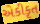
એકીકૃત